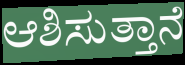
ಆಶಿಸುತ್ತಾನೆ